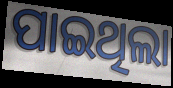
ପାଇଥିଲା